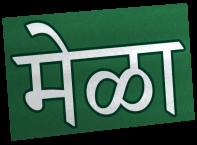
मेळा